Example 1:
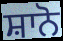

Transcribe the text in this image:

ਸ਼ਾਨੋ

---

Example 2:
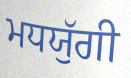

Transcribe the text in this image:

ਮਧਯੁੱਗੀ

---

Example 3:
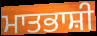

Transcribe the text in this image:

ਮਾਤਭਾਸ਼ੀ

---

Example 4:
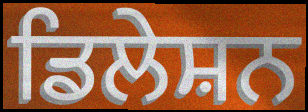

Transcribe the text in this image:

ਡਿਲੇਸ਼ਨ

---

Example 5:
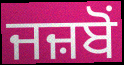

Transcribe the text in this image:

ਜਜ਼ਬੋਂ